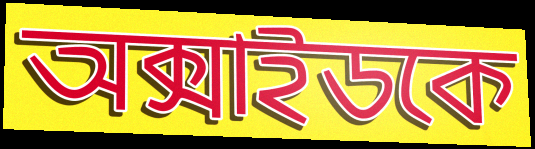
অক্সাইডকে